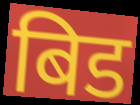
बिड